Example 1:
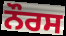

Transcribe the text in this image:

ਨੌਰਸ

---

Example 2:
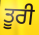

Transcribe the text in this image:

ਤੂਰੀ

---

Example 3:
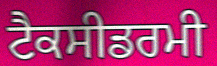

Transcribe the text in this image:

ਟੈਕਸੀਡਰਮੀ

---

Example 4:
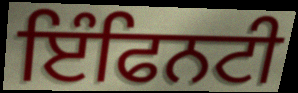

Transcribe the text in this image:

ਇੰਫਿਨਟੀ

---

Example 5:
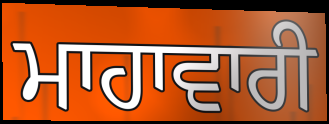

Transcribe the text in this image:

ਮਾਹਾਵਾਰੀ